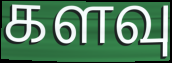
களவு